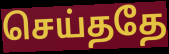
செய்ததே